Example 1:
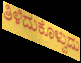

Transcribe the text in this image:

ತಿಳಿದುಕೊಳ್ವುದು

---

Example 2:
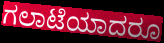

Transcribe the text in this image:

ಗಲಾಟೆಯಾದರೂ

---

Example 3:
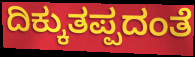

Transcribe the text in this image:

ದಿಕ್ಕುತಪ್ಪದಂತೆ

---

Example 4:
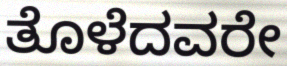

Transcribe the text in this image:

ತೊಳೆದವರೇ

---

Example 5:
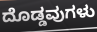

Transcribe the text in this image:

ದೊಡ್ಡವುಗಳು